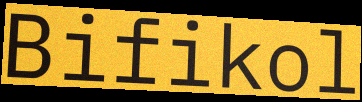
Bifikol